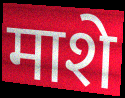
माशे